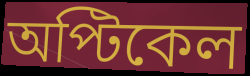
অপ্টিকেল